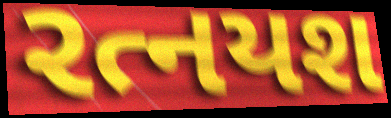
રત્નયશ